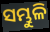
ସମ୍ଭୁଳି